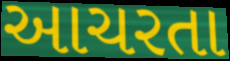
આચરતા